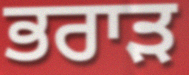
ਭਰਾੜ